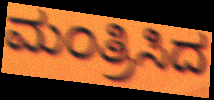
ಮಂತ್ರಿಸಿದ